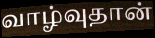
வாழ்வுதான்